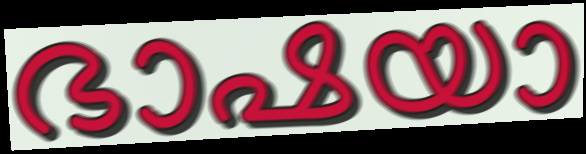
ഭാഷയാ